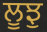
ਲੂਝੁ